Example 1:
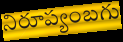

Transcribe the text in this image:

నిరూప్యంబగు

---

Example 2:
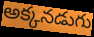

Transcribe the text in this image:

అక్కనడుగు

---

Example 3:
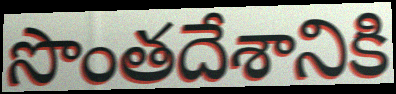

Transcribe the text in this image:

సొంతదేశానికి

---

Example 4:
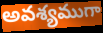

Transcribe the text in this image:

అవశ్యముగా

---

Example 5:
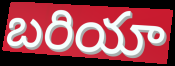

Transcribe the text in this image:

బరియా